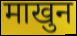
माखुन